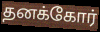
தனக்கோர்